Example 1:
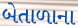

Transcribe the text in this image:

બેતાળાના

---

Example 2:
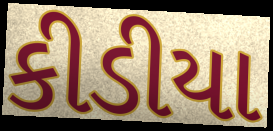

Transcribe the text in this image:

કીડીયા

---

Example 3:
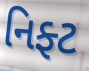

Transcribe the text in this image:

નિફ્ટ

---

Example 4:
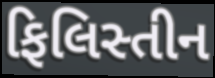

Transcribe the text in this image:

ફિલિસ્તીન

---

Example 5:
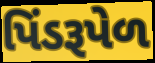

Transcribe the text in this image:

પિંડરૂપેળ